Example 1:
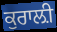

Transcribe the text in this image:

ਕੁਰਾਲ਼ੀ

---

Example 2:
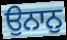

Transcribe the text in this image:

ਉਨਾਨੁ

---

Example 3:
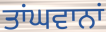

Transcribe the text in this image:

ਤਾਂਘਵਾਨਾਂ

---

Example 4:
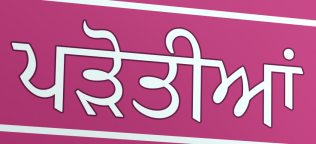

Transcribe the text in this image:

ਪੜੋਤੀਆਂ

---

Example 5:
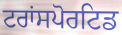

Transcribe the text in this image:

ਟਰਾਂਸਪੋਰਟਿਡ